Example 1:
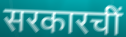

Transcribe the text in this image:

सरकारचीं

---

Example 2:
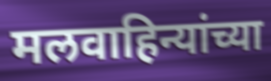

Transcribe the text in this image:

मलवाहिन्यांच्या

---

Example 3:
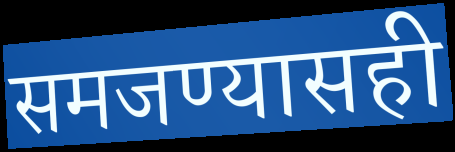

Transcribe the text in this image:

समजण्यासही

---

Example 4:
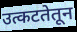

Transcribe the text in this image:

उत्कटतेतून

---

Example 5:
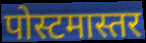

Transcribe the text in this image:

पोस्टमास्तर